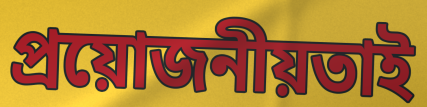
প্রয়োজনীয়তাই